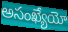
అసంఖ్యేయో